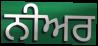
ਨੀਅਰ